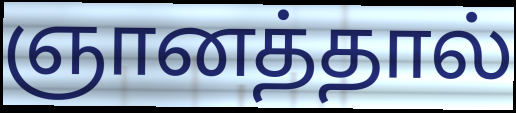
ஞானத்தால்